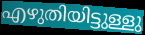
എഴുതിയിട്ടുള്ളു